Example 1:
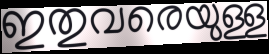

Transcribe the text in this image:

ഇതുവരെയുള്ള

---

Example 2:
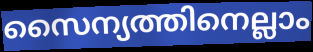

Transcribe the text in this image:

സൈന്യത്തിനെല്ലാം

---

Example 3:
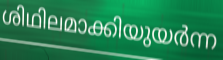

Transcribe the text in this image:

ശിഥിലമാക്കിയുയർന്ന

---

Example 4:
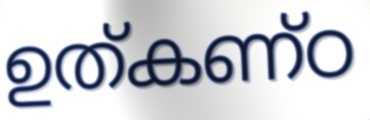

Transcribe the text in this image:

ഉത്കണ്ഠ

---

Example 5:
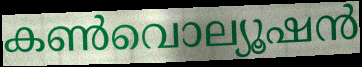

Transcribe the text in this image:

കൺവൊല്യൂഷൻ